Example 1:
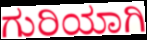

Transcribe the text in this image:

ಗುರಿಯಾಗಿ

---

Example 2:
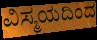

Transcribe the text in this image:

ವಿಸ್ಮಯದಿಂದ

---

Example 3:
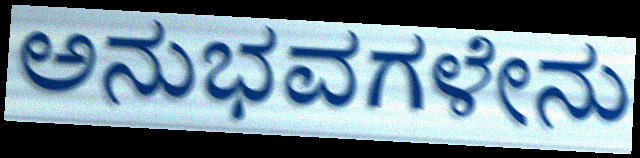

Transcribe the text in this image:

ಅನುಭವಗಳೇನು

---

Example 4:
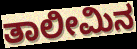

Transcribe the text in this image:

ತಾಲೀಮಿನ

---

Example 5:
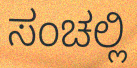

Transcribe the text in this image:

ಸಂಚಲ್ಲಿ